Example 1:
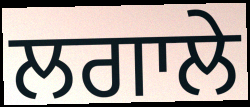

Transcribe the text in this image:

ਲਗਾਲੇ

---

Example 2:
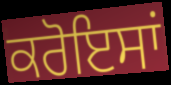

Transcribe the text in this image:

ਕਰੋਇਸਾਂ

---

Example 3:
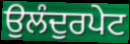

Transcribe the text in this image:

ਉਲੰਦੁਰਪੇਟ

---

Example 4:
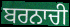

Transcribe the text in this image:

ਬਰਨਾਚੀ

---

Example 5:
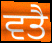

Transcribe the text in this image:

ਵਤੈ